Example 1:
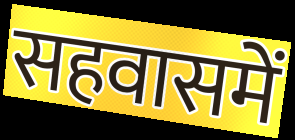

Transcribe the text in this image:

सहवासमें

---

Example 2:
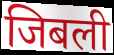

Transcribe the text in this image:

जिबली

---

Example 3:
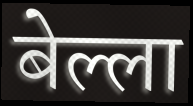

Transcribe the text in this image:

बेल्ला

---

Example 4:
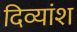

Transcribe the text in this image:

दिव्यांश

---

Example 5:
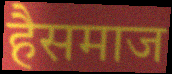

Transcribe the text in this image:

हैसमाज